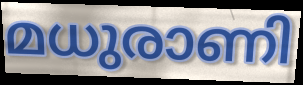
മധുരാണി